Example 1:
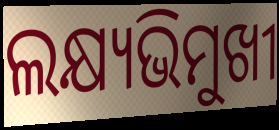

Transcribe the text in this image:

ଲକ୍ଷ୍ୟଭିମୁଖୀ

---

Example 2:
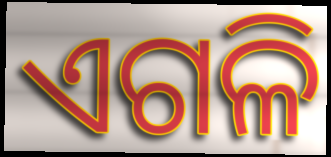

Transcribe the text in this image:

ଏଗଳି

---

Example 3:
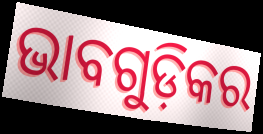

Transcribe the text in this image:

ଭାବଗୁଡ଼ିକର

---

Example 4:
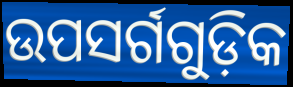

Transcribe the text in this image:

ଉପସର୍ଗଗୁଡ଼ିକ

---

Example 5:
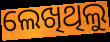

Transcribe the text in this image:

ଲେଖିଥିଲୁ